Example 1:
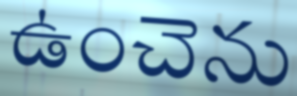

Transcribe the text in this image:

ఉంచెను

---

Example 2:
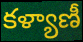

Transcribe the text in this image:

కళ్యాణీ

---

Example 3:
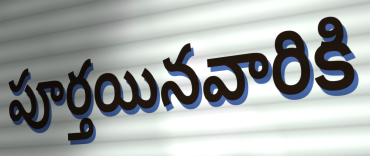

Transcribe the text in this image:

పూర్తయినవారికి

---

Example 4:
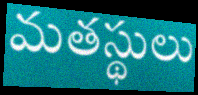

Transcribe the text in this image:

మతస్థులు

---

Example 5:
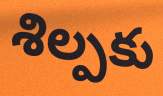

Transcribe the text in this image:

శిల్పకు